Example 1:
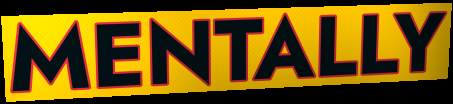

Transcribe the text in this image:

MENTALLY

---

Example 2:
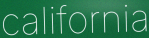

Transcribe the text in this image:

california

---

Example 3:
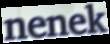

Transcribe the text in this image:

nenek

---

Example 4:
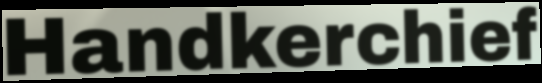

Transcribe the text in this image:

Handkerchief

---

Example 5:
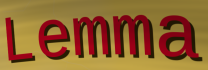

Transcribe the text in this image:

Lemma